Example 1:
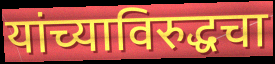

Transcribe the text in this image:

यांच्याविरुद्धचा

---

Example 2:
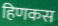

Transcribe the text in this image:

हिणकस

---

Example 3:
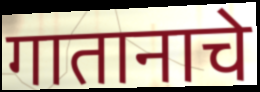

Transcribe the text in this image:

गातानाचे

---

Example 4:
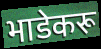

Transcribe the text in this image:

भाडेकरू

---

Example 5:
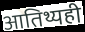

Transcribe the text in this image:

आतिथ्यही